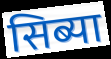
सिब्या